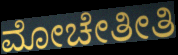
ಮೋಚೇತೀತಿ